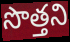
సొత్తని